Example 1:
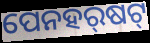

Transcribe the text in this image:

ପେନହର୍‍ଷଟ୍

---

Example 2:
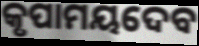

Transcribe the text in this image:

କୃପାମୟଦେବ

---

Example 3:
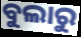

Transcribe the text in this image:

ବୁଲାରୁ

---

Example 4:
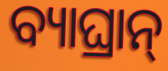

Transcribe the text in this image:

ବ୍ୟାଘ୍ରାନ୍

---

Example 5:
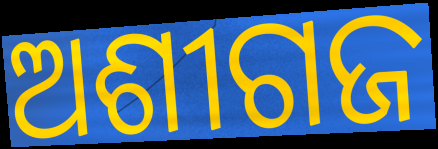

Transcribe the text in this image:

ଅଶୀଗଜ